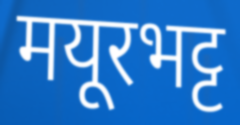
मयूरभट्ट